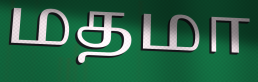
மதமா